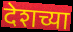
देशच्या